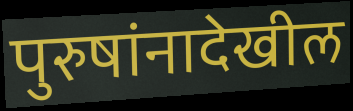
पुरुषांनादेखील